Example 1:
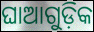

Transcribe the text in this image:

ଘାଆଗୁଡ଼ିକ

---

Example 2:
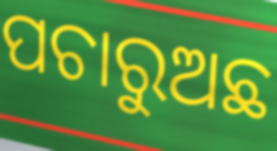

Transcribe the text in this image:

ପଚାରୁଅଛ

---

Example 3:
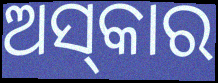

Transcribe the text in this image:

ଅସ୍‌କାର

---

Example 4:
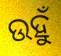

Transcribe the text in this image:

ଉହୁଁ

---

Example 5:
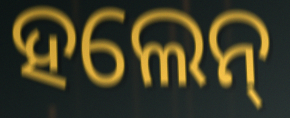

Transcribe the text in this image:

ହଲେନ୍